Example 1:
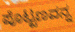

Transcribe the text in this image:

ಪೊಟ್ಟಣವನ್ನ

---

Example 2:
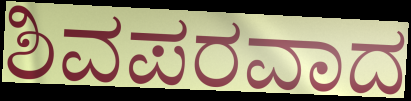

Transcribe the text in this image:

ಶಿವಪರವಾದ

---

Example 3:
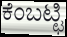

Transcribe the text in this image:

ಕೆಂಬಟ್ಟಿ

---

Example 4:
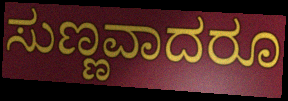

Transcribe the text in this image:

ಸುಣ್ಣವಾದರೂ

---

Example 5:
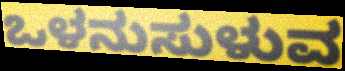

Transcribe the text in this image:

ಒಳನುಸುಳುವ